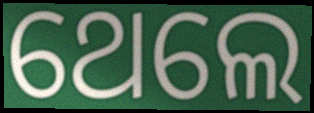
ଥେଲେ